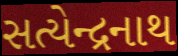
સત્યેન્દ્રનાથ